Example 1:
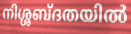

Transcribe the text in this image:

നിശ്ശബ്ദതയിൽ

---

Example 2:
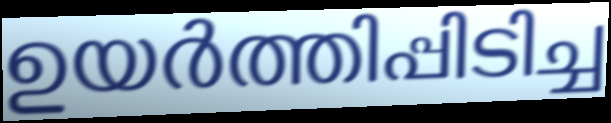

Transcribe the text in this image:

ഉയർത്തിപ്പിടിച്ച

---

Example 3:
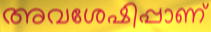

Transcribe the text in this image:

അവശേഷിപ്പാണ്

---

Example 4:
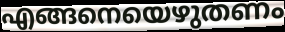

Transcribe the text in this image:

എങ്ങനെയെഴുതണം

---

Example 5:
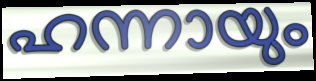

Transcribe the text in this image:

ഹന്നായും